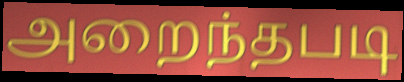
அறைந்தபடி